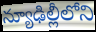
న్యూఢిల్లీలోని